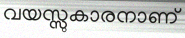
വയസ്സുകാരനാണ്